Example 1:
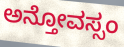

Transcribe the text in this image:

ಅನ್ತೋವಸ್ಸಂ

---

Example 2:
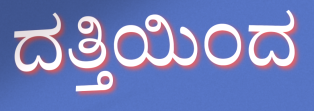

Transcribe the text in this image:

ದತ್ತಿಯಿಂದ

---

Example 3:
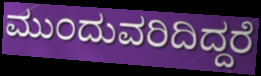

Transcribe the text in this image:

ಮುಂದುವರಿದಿದ್ದರೆ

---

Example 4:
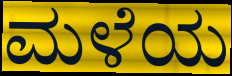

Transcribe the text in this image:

ಮಳೆಯ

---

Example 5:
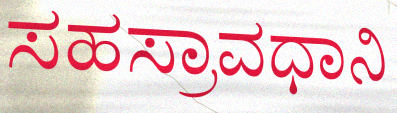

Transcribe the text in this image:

ಸಹಸ್ರಾವಧಾನಿ